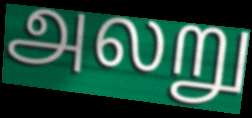
அலறு